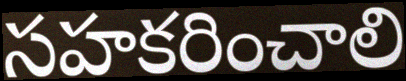
సహకరించాలి